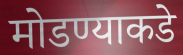
मोडण्याकडे